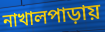
নাখালপাড়ায়